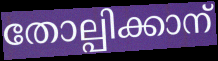
തോല്പിക്കാന്